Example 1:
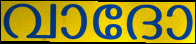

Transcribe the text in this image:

വാദോ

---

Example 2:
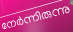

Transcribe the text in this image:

നേർന്നിരുന്നു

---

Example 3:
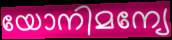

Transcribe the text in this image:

യോനിമന്യേ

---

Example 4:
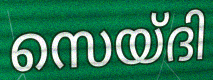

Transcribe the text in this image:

സെയ്ദി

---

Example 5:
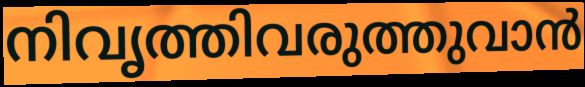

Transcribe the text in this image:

നിവൃത്തിവരുത്തുവാൻ